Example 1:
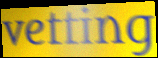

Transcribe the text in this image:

vetting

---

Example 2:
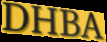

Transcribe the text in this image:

DHBA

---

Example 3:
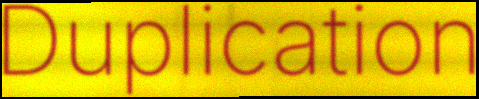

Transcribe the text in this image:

Duplication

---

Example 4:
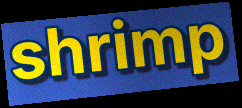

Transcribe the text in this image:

shrimp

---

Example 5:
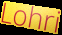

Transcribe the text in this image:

Lohri